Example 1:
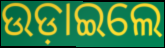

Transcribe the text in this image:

ଉଡ଼ାଇଲେ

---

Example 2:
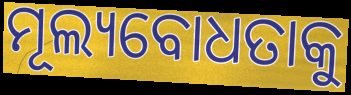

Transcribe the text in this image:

ମୂଲ୍ୟବୋଧତାକୁ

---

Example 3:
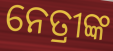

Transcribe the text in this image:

ନେତ୍ରୀଙ୍କ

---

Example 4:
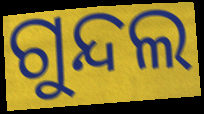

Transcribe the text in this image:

ଗୁନ୍ଦଲ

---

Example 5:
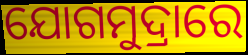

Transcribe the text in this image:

ଯୋଗମୁଦ୍ରାରେ